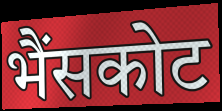
भैंसकोट